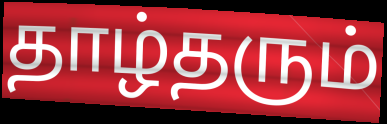
தாழ்தரும்